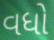
વધો